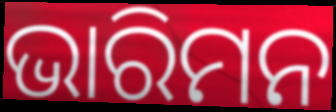
ଭାରିମନ